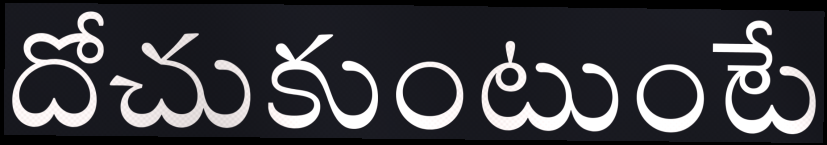
దోచుకుంటుంటే